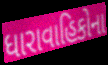
ધારાવાહિકોના